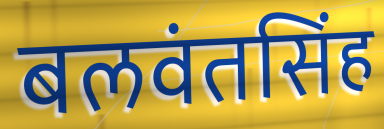
बलवंतसिंह